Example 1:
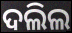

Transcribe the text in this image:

ଦଲିଲ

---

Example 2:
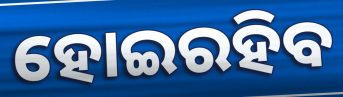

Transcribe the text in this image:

ହୋଇରହିବ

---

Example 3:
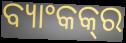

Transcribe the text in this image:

ବ୍ୟାଂକକ୍‍ର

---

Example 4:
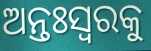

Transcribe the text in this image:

ଅନ୍ତଃସ୍ୱରକୁ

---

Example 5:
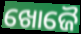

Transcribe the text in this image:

ଖୋଜୈ